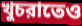
খুচরাতেও